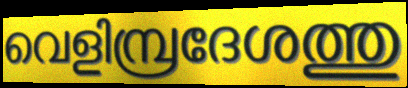
വെളിമ്പ്രദേശത്തു